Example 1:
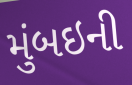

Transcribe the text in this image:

મુંબઇની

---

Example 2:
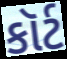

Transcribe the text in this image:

કૉર્ટ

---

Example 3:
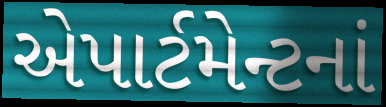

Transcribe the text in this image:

એપાર્ટમેન્ટનાં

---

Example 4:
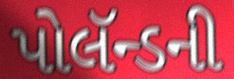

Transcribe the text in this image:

પોલૅન્ડની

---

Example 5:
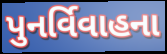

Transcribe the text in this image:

પુનર્વિવાહના